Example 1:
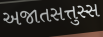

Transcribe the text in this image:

અજાતસત્તુસ્સ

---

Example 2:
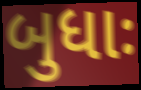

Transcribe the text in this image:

બુધાઃ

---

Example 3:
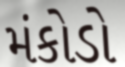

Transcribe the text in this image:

મંકોડો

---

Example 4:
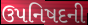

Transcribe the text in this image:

ઉપનિષદની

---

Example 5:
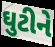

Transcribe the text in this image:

ઘુટીને